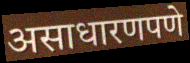
असाधारणपणे